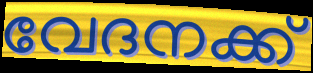
വേദനക്ക്